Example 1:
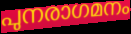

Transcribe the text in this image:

പുനരാഗമനം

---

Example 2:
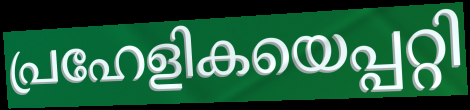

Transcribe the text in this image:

പ്രഹേളികയെപ്പറ്റി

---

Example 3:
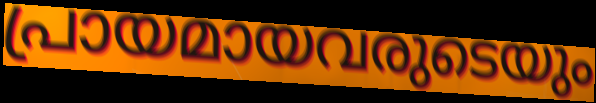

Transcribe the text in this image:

പ്രായമായവരുടെയും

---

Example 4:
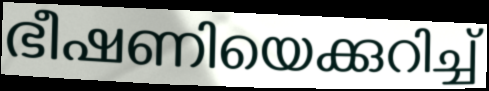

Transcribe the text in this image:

ഭീഷണിയെക്കുറിച്ച്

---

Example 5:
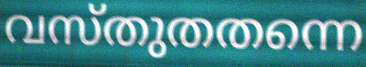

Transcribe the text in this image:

വസ്തുതതന്നെ